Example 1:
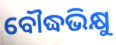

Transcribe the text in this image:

ବୌଦ୍ଧଭିକ୍ଷୁ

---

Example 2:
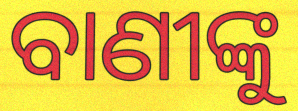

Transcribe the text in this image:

ବାଣୀଙ୍କୁ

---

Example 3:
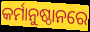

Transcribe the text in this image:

କର୍ମାନୁଷ୍ଠାନରେ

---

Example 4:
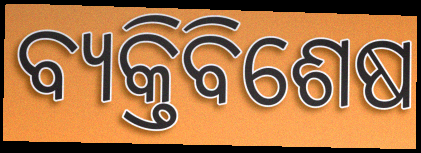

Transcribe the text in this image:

ବ୍ୟକ୍ତିବିଶେଷ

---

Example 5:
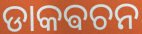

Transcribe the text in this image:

ଡାକଵଚନ